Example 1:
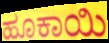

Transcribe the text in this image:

ಹೂಕಾಯಿ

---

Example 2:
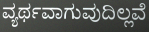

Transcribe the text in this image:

ವ್ಯರ್ಥವಾಗುವುದಿಲ್ಲವೆ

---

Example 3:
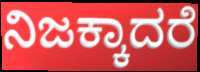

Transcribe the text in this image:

ನಿಜಕ್ಕಾದರೆ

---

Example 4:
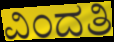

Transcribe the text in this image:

ವಿಂದತಿ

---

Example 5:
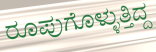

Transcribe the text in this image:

ರೂಪುಗೊಳ್ಳುತ್ತಿದ್ದ